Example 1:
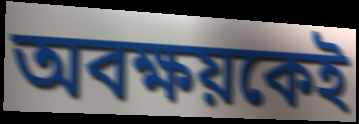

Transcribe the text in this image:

অবক্ষয়কেই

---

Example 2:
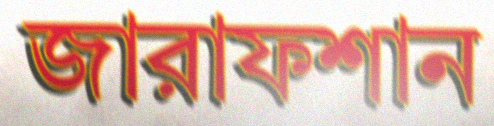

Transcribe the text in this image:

জারাফশান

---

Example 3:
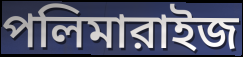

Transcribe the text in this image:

পলিমারাইজ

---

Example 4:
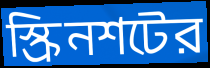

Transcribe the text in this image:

স্ক্রিনশটের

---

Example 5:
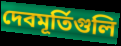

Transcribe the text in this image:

দেবমূর্তিগুলি